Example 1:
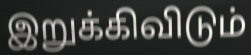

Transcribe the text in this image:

இறுக்கிவிடும்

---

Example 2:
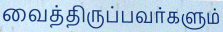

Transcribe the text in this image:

வைத்திருப்பவர்களும்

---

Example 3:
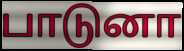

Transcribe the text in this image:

பாடுனா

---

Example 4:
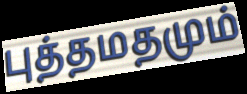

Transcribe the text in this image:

புத்தமதமும்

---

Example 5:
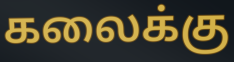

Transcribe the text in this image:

கலைக்கு